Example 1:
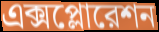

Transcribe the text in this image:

এক্সপ্লোরেশন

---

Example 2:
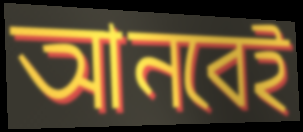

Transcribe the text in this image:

আনবেই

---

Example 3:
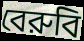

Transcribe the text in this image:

বেরুবি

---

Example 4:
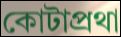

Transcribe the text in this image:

কোটাপ্রথা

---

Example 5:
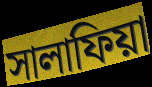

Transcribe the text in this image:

সালাফিয়া